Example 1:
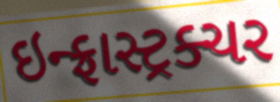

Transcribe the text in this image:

ઇન્ફ્રાસ્ટ્રક્ચર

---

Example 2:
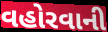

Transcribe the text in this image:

વહોરવાની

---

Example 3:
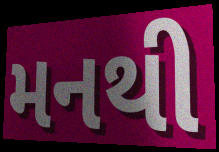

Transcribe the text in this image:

મનથી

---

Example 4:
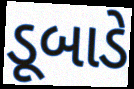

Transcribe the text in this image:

ડૂબાડે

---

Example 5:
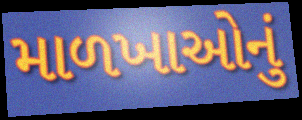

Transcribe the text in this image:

માળખાઓનું